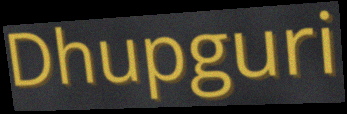
Dhupguri